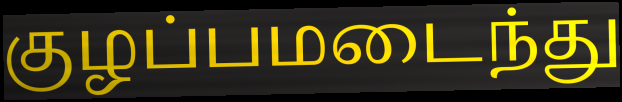
குழப்பமடைந்து